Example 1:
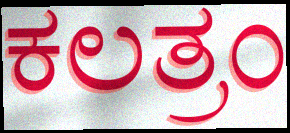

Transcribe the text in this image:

ಕಲತ್ರಂ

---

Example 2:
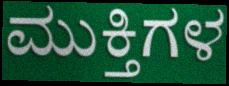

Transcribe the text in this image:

ಮುಕ್ತಿಗಳ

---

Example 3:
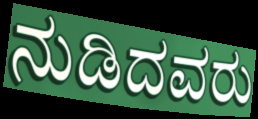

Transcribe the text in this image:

ನುಡಿದವರು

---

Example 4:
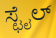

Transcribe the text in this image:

ಸ್ಟೈಲ್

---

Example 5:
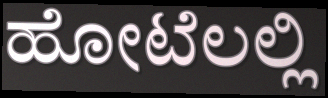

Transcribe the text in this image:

ಹೋಟೆಲಲ್ಲಿ